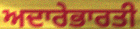
ਅਦਾਰੇਭਾਰਤੀ